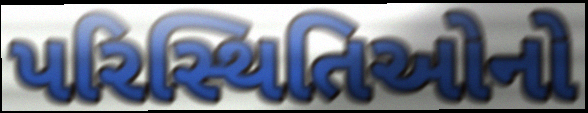
પરિસ્થિતિઓનો